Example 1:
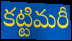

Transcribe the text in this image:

కట్టిమరీ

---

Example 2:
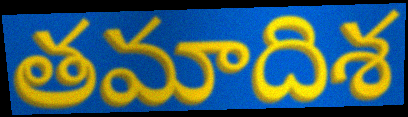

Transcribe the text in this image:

తమాదిశ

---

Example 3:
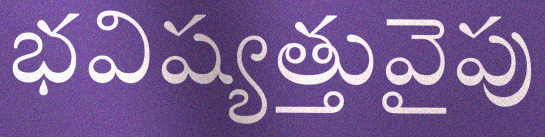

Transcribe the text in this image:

భవిష్యత్తువైపు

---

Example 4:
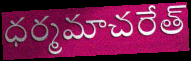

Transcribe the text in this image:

ధర్మమాచరేత్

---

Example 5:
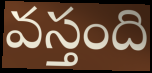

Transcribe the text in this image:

వస్తంది